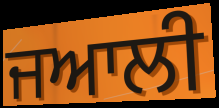
ਜਆਲੀ